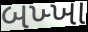
બખ્ખા